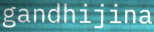
gandhijina